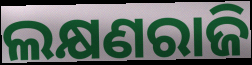
ଲକ୍ଷଣରାଜି